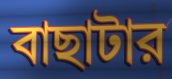
বাছাটার